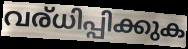
വര്ധിപ്പിക്കുക